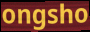
ongsho